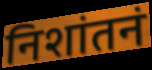
निशांतनं